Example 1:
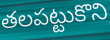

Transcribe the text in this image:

తలపట్టుకొని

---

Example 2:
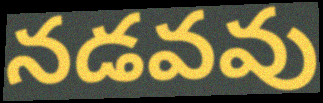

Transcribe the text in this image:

నడవవు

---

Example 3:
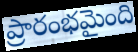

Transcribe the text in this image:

ప్రారంభమైంది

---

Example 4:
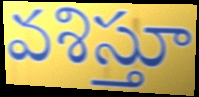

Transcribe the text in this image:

వశిస్తూ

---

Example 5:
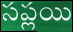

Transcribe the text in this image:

సప్లయి